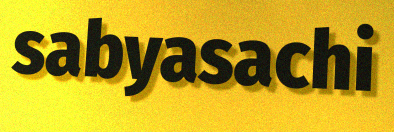
sabyasachi